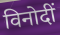
विनोदीं